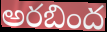
అరబింద